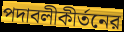
পদাবলীকীর্তনের